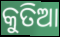
କୁତିଆ